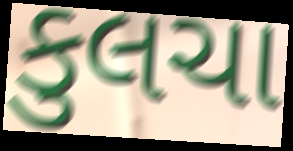
કુલચા